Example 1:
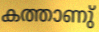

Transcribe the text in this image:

കത്താണു്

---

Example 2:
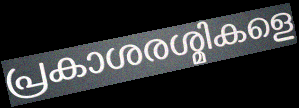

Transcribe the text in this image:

പ്രകാശരശ്മികളെ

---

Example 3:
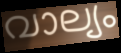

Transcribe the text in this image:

വാല്യം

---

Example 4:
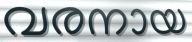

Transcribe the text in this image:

വരനായ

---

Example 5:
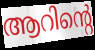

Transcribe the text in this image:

ആറിന്റെ